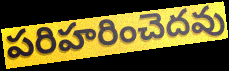
పరిహరించెదవు